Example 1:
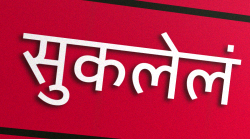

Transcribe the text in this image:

सुकलेलं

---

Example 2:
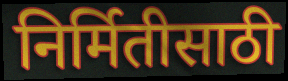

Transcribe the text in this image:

निर्मितीसाठी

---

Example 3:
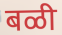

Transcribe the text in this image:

बळी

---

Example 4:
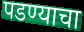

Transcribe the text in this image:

पडण्याचा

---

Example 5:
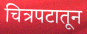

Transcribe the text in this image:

चित्रपटातून